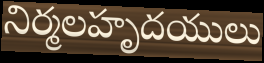
నిర్మలహృదయులు